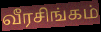
வீரசிங்கம்